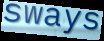
sways